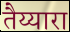
तैय्यारा